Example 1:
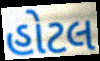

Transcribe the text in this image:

હોટલ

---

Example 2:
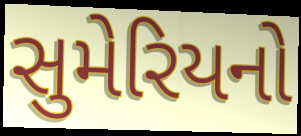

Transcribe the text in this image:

સુમેરિયનો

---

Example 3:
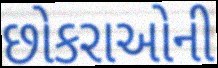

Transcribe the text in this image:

છોકરાઓની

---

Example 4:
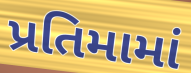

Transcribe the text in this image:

પ્રતિમામાં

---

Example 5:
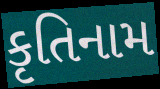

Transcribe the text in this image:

કૃતિનામ